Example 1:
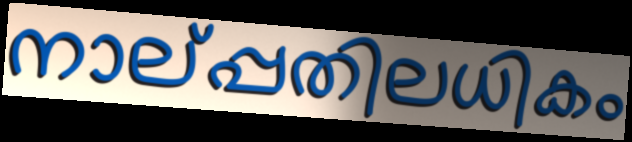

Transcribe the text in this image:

നാല്പ്പതിലധികം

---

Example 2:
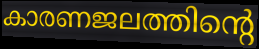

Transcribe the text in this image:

കാരണജലത്തിന്റെ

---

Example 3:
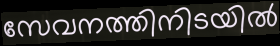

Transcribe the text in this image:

സേവനത്തിനിടയിൽ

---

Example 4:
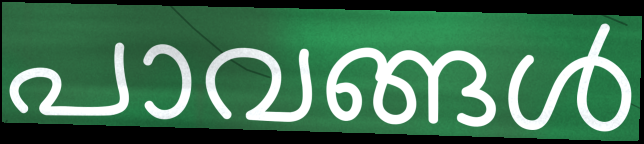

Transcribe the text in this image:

പാവങ്ങൾ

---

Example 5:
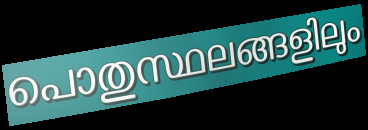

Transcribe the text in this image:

പൊതുസ്ഥലങ്ങളിലും